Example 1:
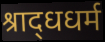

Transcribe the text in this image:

श्राद्धधर्म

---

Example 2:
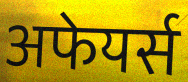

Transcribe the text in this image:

अफेयर्स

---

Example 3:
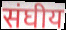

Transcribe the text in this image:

संघीय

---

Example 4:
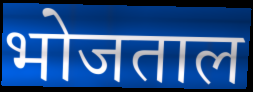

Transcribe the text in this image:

भोजताल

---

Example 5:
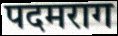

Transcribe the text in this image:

पदमराग